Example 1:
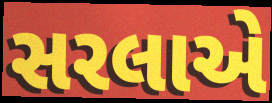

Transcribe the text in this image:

સરલાએ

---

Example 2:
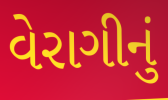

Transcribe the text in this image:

વેરાગીનું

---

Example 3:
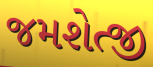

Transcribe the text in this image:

જમશેત્જી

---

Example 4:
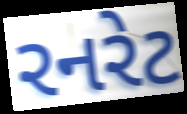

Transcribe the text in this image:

રનરેટ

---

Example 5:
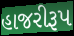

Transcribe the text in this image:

હાજરીરૂપ